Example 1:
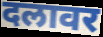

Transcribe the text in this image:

दलावर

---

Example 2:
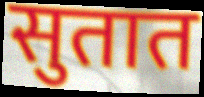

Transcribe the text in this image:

सुतात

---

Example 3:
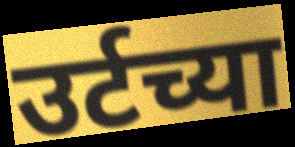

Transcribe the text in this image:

उर्टच्या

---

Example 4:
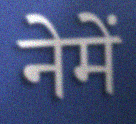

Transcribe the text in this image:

नेमें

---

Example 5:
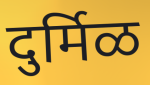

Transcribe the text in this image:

दुर्मिळ